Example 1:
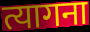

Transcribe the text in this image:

त्यागना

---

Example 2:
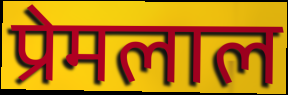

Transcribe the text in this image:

प्रेमलाल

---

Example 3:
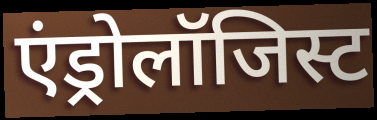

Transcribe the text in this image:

एंड्रोलॉजिस्ट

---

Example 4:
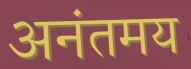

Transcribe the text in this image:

अनंतमय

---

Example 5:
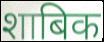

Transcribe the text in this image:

शाबिक